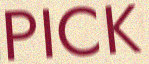
PICK